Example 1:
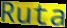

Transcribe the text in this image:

Ruta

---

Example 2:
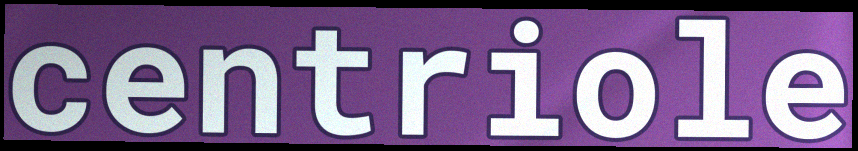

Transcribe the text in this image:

centriole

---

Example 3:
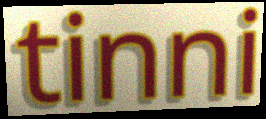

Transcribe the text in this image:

tinni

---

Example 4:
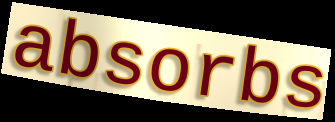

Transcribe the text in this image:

absorbs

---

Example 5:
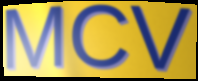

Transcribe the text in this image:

MCV